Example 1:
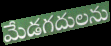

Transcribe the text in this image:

మేడగదులను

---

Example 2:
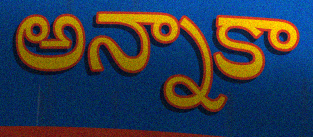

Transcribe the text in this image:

అన్నాకా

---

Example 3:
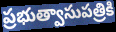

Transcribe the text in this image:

ప్రభుత్వాసుపత్రికి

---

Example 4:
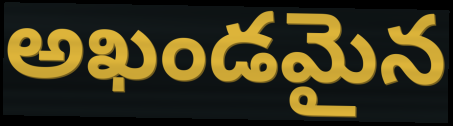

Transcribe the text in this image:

అఖండమైన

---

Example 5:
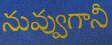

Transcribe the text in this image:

నువ్వుగానీ